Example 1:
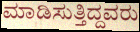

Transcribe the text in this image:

ಮಾಡಿಸುತ್ತಿದ್ದವರು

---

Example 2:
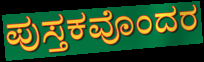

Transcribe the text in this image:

ಪುಸ್ತಕವೊಂದರ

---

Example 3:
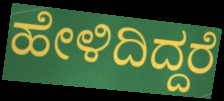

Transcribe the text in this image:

ಹೇಳಿದಿದ್ದರೆ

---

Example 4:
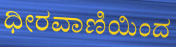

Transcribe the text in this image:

ಧೀರವಾಣಿಯಿಂದ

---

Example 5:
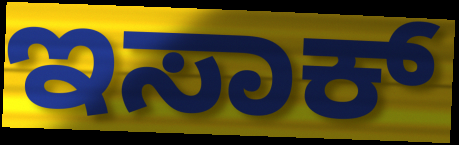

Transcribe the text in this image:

ಇಸಾಕ್